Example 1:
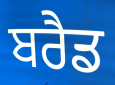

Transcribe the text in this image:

ਬਰੈਡ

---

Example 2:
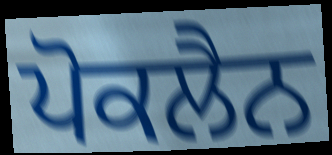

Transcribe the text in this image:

ਪੋਕਲੈਨ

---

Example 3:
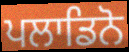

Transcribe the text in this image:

ਪਲਾਡਿਨੋ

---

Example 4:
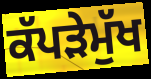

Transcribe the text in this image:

ਕੱਪੜੇਮੁੱਖ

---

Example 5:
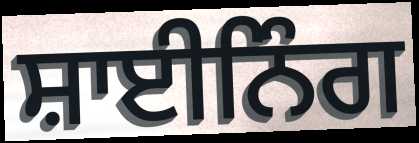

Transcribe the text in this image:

ਸ਼ਾਈਨਿੰਗ